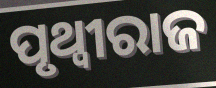
ପୃଥ୍ୱୀରାଜ